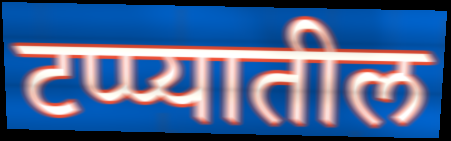
टप्प्यातील